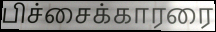
பிச்சைக்காரரை